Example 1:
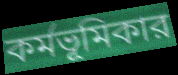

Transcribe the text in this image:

কর্মভূমিকার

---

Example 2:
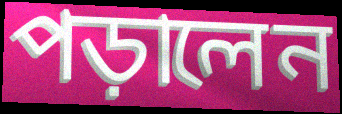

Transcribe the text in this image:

পড়ালেন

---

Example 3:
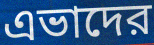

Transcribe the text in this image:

এভাদের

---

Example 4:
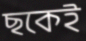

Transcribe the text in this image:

ছকেই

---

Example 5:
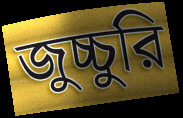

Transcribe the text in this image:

জুচ্চুরি